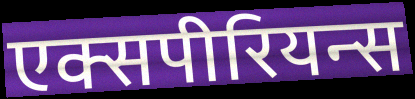
एक्सपीरियन्स